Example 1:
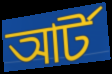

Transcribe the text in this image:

আৰ্ট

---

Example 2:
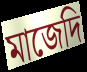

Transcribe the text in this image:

মাজেদি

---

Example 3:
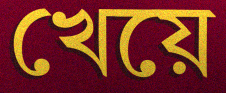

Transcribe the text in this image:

খেয়ে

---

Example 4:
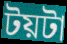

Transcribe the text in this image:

টয়টা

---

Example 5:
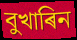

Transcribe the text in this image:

বুখাৰিন